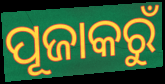
ପୂଜାକରୁଁ